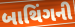
બાથિંગની